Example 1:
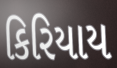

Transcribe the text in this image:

કિરિયાય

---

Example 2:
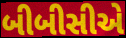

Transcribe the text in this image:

બીબીસીએ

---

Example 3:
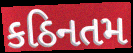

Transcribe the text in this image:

કઠિનતમ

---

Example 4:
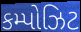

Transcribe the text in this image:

કમ્પોઝિટ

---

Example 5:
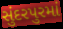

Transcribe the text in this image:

સુંદરપુરમાં